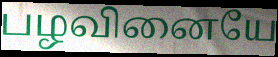
பழவினையே